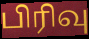
பிரிவு